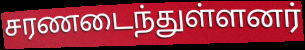
சரணடைந்துள்ளனர்